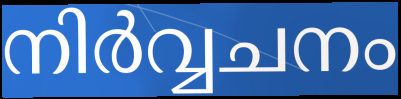
നിർവ്വചനം